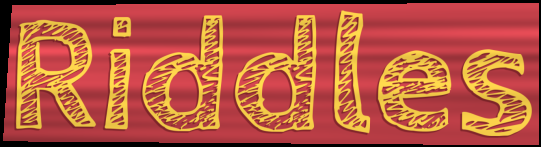
Riddles